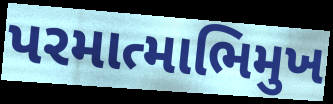
પરમાત્માભિમુખ